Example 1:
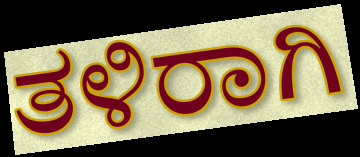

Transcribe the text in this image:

ತಳಿರಾಗಿ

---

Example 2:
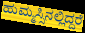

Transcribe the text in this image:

ಹುಮ್ಮಸ್ಸಿನಲ್ಲಿದ್ದರೆ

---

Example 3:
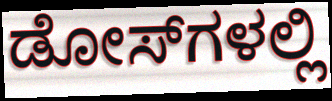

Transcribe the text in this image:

ಡೋಸ್‌ಗಳಲ್ಲಿ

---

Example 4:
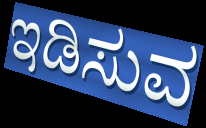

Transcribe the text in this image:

ಇಡಿಸುವ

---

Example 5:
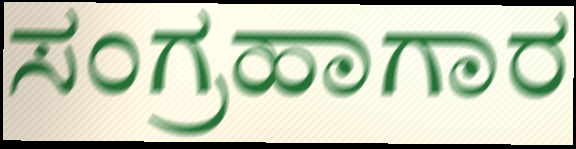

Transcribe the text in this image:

ಸಂಗ್ರಹಾಗಾರ